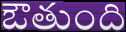
ఔతుంది